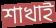
শাখাই